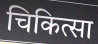
चिकित्सा